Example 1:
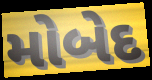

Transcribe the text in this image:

મોબેદ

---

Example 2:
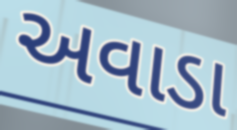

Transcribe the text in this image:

અવાડા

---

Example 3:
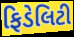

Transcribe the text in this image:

ફિડેલિટી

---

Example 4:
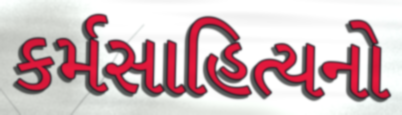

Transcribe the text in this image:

કર્મસાહિત્યનો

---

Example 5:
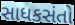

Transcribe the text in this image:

સાધકસંતો